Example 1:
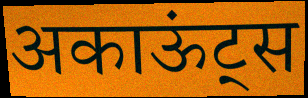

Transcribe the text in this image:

अकाऊंट्स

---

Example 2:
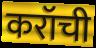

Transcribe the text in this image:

करॉची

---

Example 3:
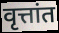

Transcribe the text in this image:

वृत्तांत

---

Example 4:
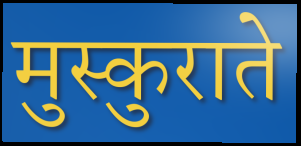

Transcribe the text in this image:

मुस्कुराते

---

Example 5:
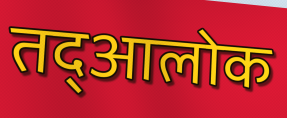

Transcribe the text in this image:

तद्आलोक